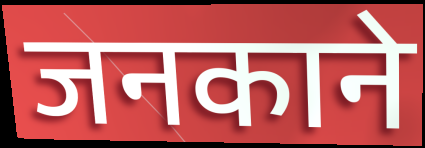
जनकाने